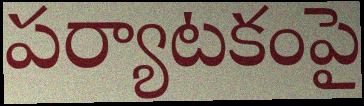
పర్యాటకంపై